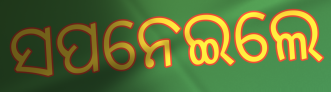
ସପନେଇଲେ